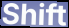
Shift